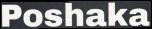
Poshaka